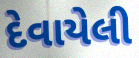
દેવાયેલી